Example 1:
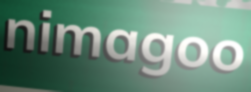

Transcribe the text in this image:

nimagoo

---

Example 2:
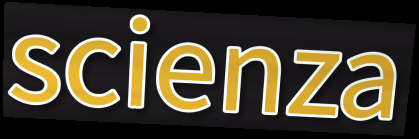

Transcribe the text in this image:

scienza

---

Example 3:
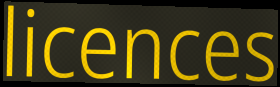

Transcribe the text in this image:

licences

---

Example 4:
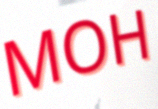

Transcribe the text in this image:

MOH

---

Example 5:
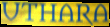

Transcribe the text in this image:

UTHARA